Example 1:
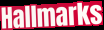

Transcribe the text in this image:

Hallmarks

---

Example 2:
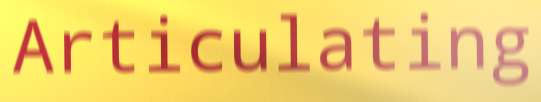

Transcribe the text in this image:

Articulating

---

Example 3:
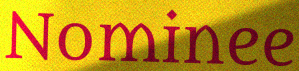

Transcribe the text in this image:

Nominee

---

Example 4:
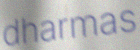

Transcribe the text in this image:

dharmas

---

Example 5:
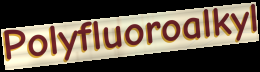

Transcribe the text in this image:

Polyfluoroalkyl